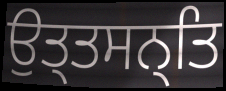
ਉਤ੍ਤਸਨ੍ਤਿ